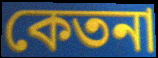
কেতনা